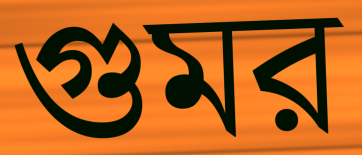
গুমর